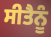
ਸੀਤੈਨੂੰ